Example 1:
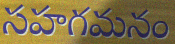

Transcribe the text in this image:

సహగమనం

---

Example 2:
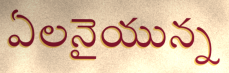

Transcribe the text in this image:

ఏలనైయున్న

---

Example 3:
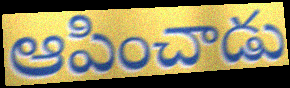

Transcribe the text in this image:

ఆపించాడు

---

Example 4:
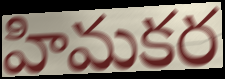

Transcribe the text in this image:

హిమకర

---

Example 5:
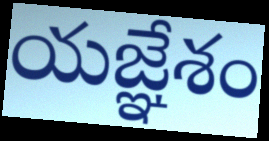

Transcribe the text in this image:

యజ్ఞేశం